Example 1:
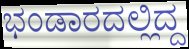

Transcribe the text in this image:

ಭಂಡಾರದಲ್ಲಿದ್ದ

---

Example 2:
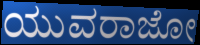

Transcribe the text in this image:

ಯುವರಾಜೋ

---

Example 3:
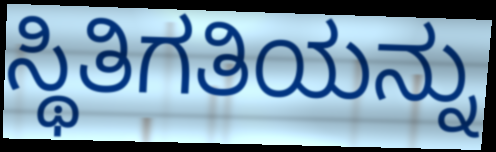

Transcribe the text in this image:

ಸ್ಥಿತಿಗತಿಯನ್ನು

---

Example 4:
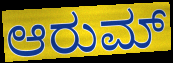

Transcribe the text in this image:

ಆರುಮ್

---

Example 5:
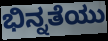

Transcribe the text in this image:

ಭಿನ್ನತೆಯು